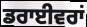
ਡਰਾਈਵਰਾਂ